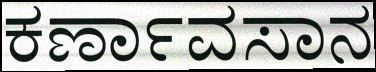
ಕರ್ಣಾವಸಾನ